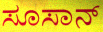
ಸೂಸಾನ್